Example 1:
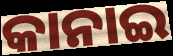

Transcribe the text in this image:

କାନାଇ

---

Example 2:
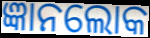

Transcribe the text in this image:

ଜ୍ଞାନଲୋକ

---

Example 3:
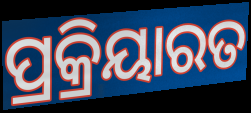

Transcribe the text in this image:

ପ୍ରକ୍ରିୟାରତ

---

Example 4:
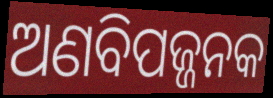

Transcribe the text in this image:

ଅଣବିପଜ୍ଜନକ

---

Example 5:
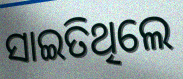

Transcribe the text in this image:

ସାଇତିଥିଲେ